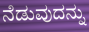
ನೆಡುವುದನ್ನು